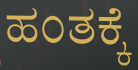
ಹಂತಕ್ಕೆ